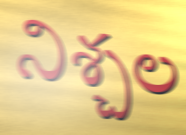
నిశ్చల